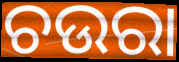
ଚଉରା